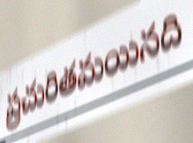
ప్రచురితమయినది